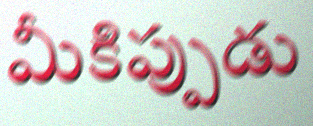
మీకిప్పుడు